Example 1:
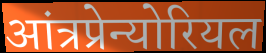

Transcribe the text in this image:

आंत्रप्रेन्योरियल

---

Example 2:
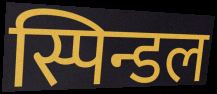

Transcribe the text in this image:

स्पिन्डल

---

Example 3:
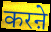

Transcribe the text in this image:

करऩे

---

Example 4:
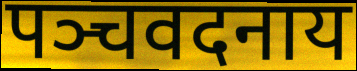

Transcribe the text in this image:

पञ्चवदनाय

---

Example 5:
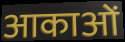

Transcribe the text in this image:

आकाओं